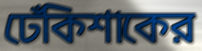
ঢেঁকিশাকের